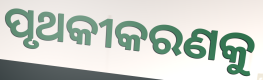
ପୃଥକୀକରଣକୁ